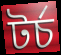
টর্চ